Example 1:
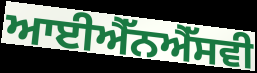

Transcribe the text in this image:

ਆਈਐੱਨਐੱਸਵੀ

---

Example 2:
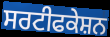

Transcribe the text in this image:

ਸਰਟੀਫਕੇਸ਼ਨ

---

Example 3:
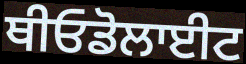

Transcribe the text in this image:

ਥੀਓਡੋਲਾਈਟ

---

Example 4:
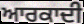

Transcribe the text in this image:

ਆਰਕਾਦੀ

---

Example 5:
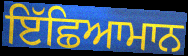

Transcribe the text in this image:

ਇੱਛਿਆਮਾਨ